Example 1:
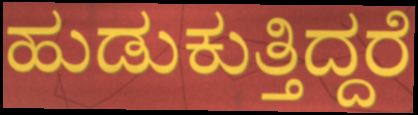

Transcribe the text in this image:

ಹುಡುಕುತ್ತಿದ್ದರೆ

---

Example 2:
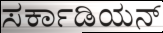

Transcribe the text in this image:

ಸರ್ಕಾಡಿಯನ್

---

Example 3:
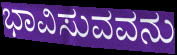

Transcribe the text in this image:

ಭಾವಿಸುವವನು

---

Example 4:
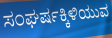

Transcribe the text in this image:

ಸಂಘರ್ಷಕ್ಕಿಳಿಯುವ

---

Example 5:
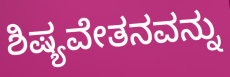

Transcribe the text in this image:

ಶಿಷ್ಯವೇತನವನ್ನು